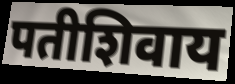
पतीशिवाय